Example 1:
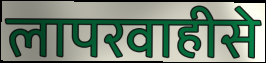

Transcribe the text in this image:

लापरवाहीसे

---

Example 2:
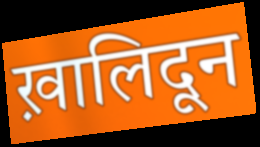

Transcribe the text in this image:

ख़ालिदून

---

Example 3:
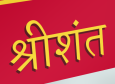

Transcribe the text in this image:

श्रीशंत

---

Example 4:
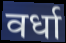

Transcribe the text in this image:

वर्धा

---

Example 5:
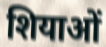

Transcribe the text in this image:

शियाओं